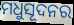
ମଧୁସୂଦନର